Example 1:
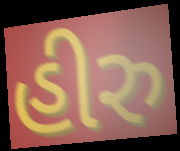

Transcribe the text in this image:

હીરુ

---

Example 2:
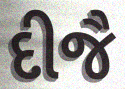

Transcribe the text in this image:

દીજૈ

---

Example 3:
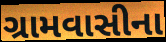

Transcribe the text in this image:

ગ્રામવાસીના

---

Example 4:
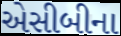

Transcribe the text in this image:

એસીબીના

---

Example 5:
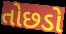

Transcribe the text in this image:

તોછડો